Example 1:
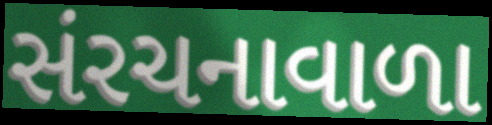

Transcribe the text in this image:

સંરચનાવાળા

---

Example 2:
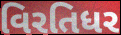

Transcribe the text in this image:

વિરતિધર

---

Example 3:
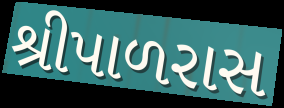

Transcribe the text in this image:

શ્રીપાળરાસ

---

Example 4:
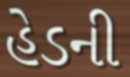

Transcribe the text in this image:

હેડની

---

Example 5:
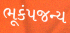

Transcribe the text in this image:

ભૂકંપજન્ય